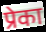
प्रेका